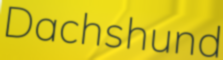
Dachshund